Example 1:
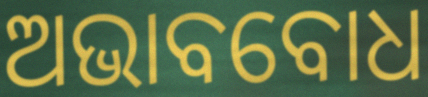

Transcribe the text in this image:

ଅଭାବବୋଧ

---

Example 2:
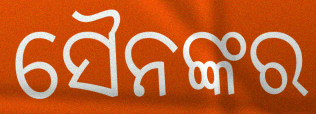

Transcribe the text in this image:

ସୈନଙ୍କର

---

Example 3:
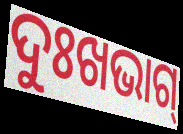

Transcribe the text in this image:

ଦୁଃଖଭାଗ୍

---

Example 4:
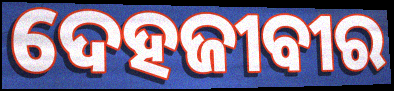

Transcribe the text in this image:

ଦେହଜୀବୀର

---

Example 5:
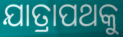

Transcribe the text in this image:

ଯାତ୍ରାପଥକୁ